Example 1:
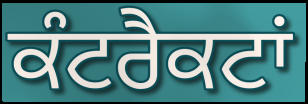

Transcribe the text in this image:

ਕੰਟਰੈਕਟਾਂ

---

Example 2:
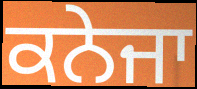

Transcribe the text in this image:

ਕਨੇਜਾ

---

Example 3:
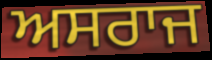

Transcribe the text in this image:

ਅਸਰਾਜ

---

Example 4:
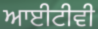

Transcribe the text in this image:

ਆਈਟੀਵੀ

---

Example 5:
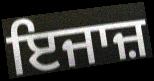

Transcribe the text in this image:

ਇਜਾਜ਼